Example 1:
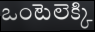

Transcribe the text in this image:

ఒంటెలెక్కి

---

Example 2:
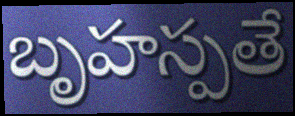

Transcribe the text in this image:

బృహస్పతే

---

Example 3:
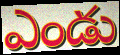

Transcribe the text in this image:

ఎండు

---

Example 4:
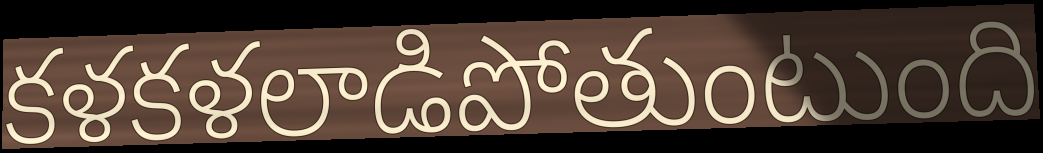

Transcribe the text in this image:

కళకళలాడిపోతుంటుంది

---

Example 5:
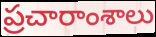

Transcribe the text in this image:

ప్రచారాంశాలు